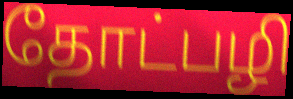
தோட்பழி